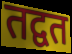
तद्वत